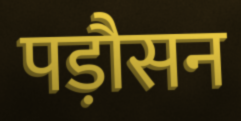
पड़ौसन